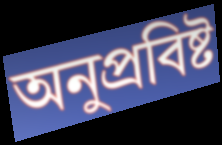
অনুপ্রবিষ্ট